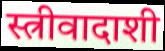
स्त्रीवादाशी